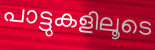
പാട്ടുകളിലൂടെ